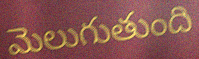
మెలుగుతుంది